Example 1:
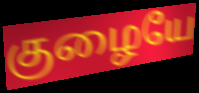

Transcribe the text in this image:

குழையே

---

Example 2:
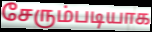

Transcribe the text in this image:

சேரும்படியாக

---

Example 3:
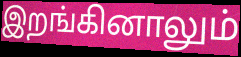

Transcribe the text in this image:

இறங்கினாலும்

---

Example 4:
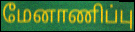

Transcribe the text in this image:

மேனாணிப்பு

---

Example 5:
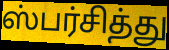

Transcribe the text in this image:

ஸ்பர்சித்து